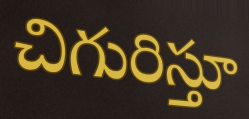
చిగురిస్తూ